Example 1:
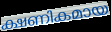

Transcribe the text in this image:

ക്ഷണികമായ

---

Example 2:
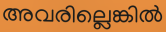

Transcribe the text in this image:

അവരില്ലെങ്കിൽ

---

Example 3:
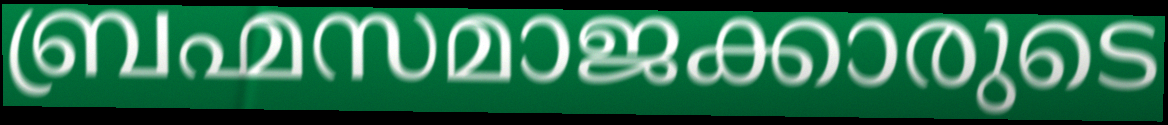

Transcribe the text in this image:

ബ്രഹ്മസമാജക്കാരുടെ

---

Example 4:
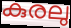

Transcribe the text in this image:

കുരലു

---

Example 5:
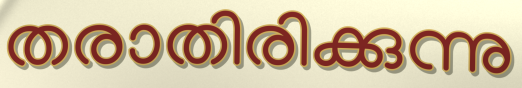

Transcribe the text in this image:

തരാതിരിക്കുന്നു